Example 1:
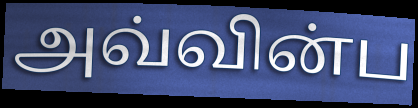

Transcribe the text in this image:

அவ்வின்ப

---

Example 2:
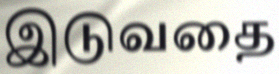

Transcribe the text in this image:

இடுவதை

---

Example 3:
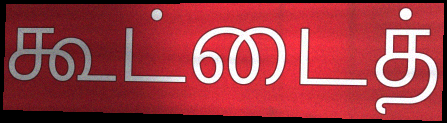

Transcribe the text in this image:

கூட்டைத்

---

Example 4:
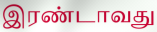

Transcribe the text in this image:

இரண்டாவது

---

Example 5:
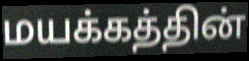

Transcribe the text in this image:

மயக்கத்தின்